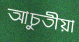
আচুতীয়া